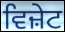
ਵਿਜ਼ੇਟ